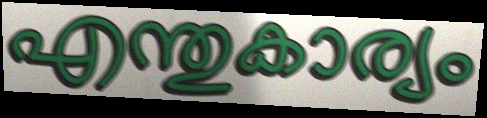
എന്തുകാര്യം